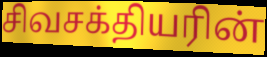
சிவசக்தியரின்